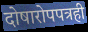
दोषारोपपत्रही